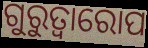
ଗୁରୁତ୍ବାରୋପ